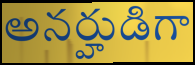
అనర్హుడిగా